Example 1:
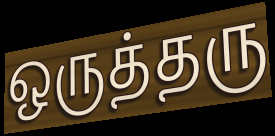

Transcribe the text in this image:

ஒருத்தரு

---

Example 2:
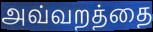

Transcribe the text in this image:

அவ்வறத்தை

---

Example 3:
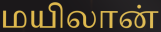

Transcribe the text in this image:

மயிலான்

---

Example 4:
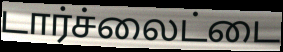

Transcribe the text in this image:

டார்ச்லைட்டை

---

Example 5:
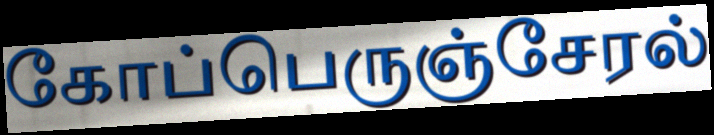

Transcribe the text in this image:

கோப்பெருஞ்சேரல்